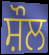
ਸ਼ੌਲ